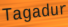
Tagadur